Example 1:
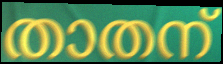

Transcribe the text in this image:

താതന്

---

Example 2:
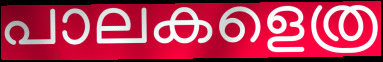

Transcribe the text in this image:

പാലകളെത്ര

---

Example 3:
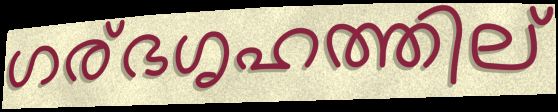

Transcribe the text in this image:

ഗര്ഭഗൃഹത്തില്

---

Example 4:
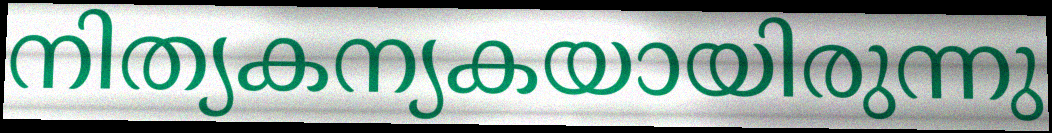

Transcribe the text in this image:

നിത്യകന്യകയായിരുന്നു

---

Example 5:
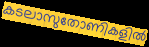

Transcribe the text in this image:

കടലാസുതോണികളിൽ